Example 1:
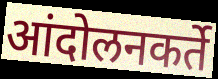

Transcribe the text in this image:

आंदोलनकर्ते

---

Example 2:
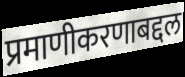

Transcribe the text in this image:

प्रमाणीकरणाबद्दल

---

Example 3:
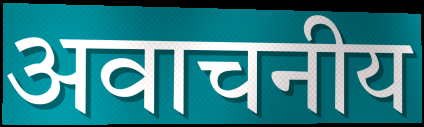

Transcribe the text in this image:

अवाचनीय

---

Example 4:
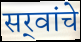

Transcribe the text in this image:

सर्वांचे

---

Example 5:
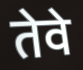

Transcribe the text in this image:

तेवे